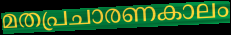
മതപ്രചാരണകാലം